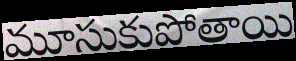
మూసుకుపోతాయి